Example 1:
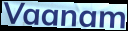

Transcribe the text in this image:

Vaanam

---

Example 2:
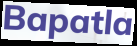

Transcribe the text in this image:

Bapatla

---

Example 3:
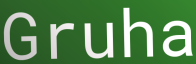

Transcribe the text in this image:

Gruha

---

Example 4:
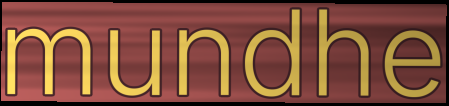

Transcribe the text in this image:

mundhe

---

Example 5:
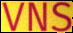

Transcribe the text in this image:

VNS